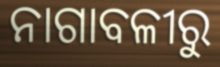
ନାଗାବଳୀରୁ